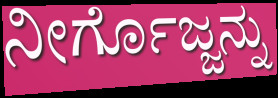
ನೀರ್ಗೊಜ್ಜನ್ನು